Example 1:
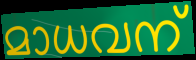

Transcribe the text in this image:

മാധവന്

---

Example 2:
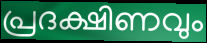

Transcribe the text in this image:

പ്രദക്ഷിണവും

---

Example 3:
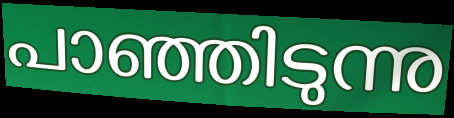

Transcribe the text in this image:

പാഞ്ഞിടുന്നു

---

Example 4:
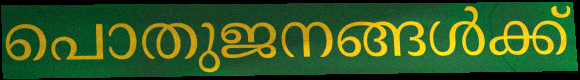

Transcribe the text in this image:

പൊതുജനങ്ങൾക്ക്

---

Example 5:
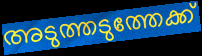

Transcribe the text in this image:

അടുത്തടുത്തേക്ക്